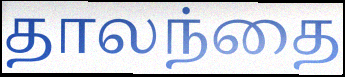
தாலந்தை